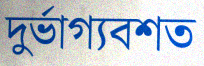
দুর্ভাগ্যবশত